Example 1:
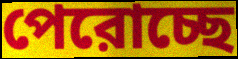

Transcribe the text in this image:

পেরোচ্ছে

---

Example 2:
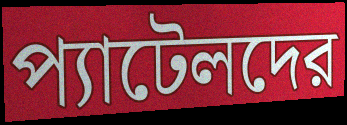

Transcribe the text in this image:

প্যাটেলদের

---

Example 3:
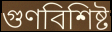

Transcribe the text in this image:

গুণবিশিষ্ট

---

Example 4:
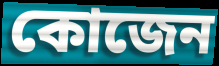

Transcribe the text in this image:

কোজেন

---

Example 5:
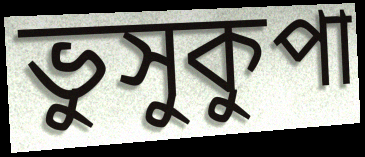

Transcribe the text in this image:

ভুসুকুপা